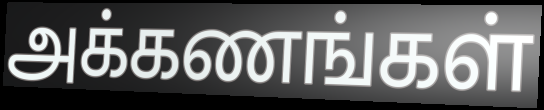
அக்கணங்கள்